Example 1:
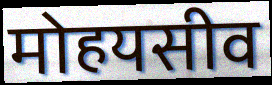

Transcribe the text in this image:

मोहयसीव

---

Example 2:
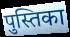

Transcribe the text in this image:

पुस्तिका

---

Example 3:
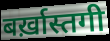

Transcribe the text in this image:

बर्ख़ास्तगी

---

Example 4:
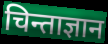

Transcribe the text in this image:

चिन्ताज्ञान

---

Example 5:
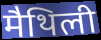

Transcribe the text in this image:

मैथिली